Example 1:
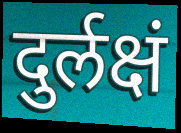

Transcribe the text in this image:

दुर्लक्षं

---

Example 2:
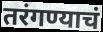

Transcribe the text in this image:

तरंगण्याचं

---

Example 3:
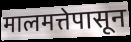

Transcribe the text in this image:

मालमत्तेपासून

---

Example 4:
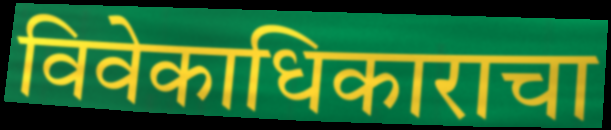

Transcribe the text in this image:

विवेकाधिकाराचा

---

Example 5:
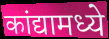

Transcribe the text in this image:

कांद्यामध्ये